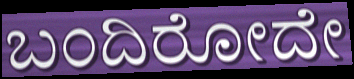
ಬಂದಿರೋದೇ